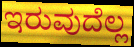
ಇರುವುದೆಲ್ಲ